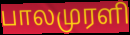
பாலமுரளி